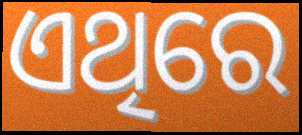
ଏଥିରେ